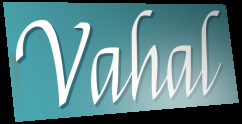
Vahal